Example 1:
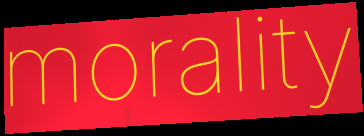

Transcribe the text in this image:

morality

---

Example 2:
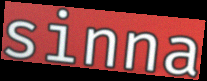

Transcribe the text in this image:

sinna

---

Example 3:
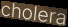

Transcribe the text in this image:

cholera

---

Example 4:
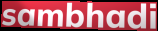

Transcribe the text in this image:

sambhadi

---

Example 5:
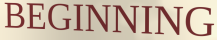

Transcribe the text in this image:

BEGINNING